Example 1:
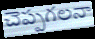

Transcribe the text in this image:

చెప్పగలనా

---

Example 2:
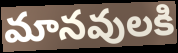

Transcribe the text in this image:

మానవులకి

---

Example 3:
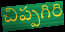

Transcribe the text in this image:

చిప్పగిరి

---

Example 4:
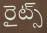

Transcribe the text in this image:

రైట్స్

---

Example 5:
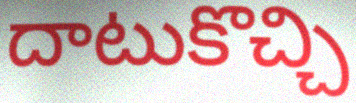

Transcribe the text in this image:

దాటుకొచ్చి